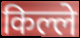
किल्ले